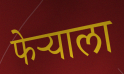
फेऱ्याला